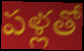
పళ్లతో